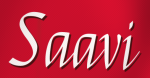
Saavi